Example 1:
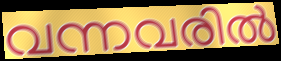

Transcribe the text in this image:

വന്നവരിൽ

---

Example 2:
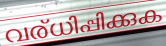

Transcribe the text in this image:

വര്ധിപ്പിക്കുക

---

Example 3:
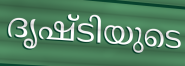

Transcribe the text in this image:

ദൃഷ്ടിയുടെ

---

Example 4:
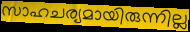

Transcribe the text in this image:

സാഹചര്യമായിരുന്നില്ല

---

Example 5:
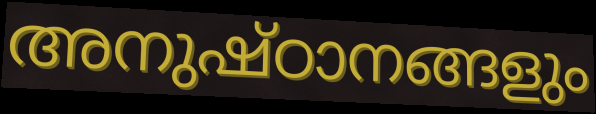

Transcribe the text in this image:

അനുഷ്ഠാനങ്ങളും